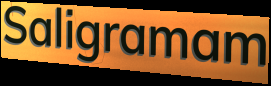
Saligramam